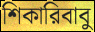
শিকারিবাবু